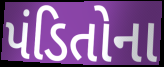
પંડિતોના